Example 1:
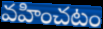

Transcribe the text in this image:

వహించటం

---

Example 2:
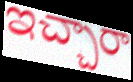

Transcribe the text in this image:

ఇచ్చారా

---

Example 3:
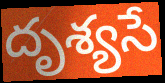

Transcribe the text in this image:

దృశ్యసే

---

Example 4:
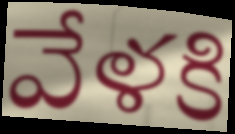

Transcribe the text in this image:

వేళకి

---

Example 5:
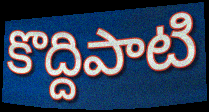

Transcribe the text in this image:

కొద్దిపాటి